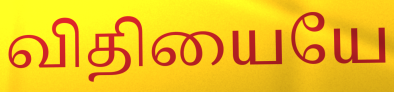
விதியையே